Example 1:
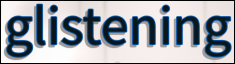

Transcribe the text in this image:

glistening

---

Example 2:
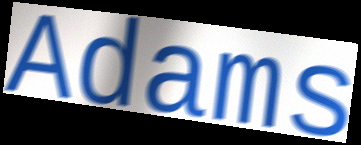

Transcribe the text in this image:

Adams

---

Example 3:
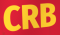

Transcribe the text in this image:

CRB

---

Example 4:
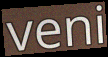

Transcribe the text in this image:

veni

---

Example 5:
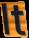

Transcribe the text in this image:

It